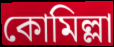
কোমিল্লা